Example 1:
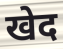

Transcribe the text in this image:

खेद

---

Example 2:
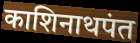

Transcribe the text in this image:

काशिनाथपंत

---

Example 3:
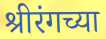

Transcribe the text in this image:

श्रीरंगच्या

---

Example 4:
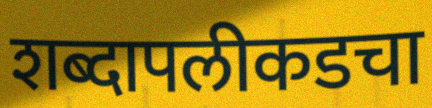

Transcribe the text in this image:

शब्दापलीकडचा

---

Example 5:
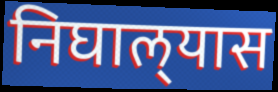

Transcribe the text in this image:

निघाल्यास